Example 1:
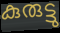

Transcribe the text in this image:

കുരുട്ടു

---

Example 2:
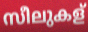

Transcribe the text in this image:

സീലുകള്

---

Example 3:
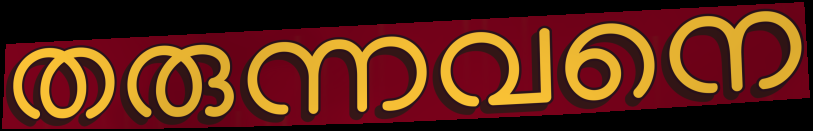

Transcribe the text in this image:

തരുന്നവനെ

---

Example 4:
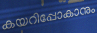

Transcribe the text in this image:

കയറിപ്പോകാനും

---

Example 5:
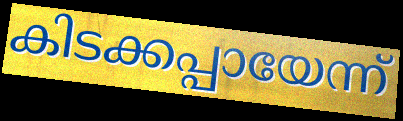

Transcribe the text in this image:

കിടക്കപ്പായേന്ന്